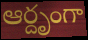
ఆర్దృంగా